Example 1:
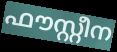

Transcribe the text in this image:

ഫൗസ്റ്റീന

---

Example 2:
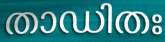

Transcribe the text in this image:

താഡിതഃ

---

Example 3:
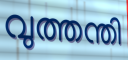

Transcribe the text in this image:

വുത്തന്തി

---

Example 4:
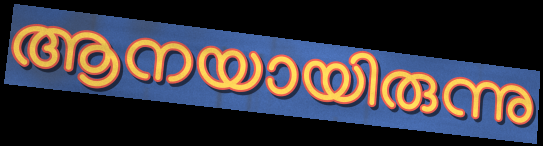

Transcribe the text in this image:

ആനയായിരുന്നു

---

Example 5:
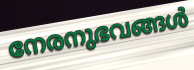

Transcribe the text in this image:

നേരനുഭവങ്ങൾ